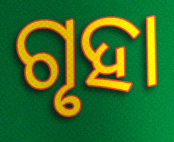
ଗୃହା